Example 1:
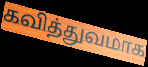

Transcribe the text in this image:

கவித்துவமாக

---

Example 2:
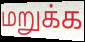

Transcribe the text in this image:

மறுக்க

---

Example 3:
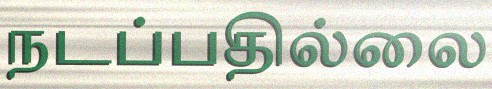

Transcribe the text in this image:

நடப்பதில்லை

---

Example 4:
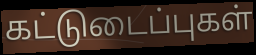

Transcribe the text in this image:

கட்டுடைப்புகள்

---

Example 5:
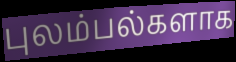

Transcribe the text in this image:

புலம்பல்களாக